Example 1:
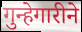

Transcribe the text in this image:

गुन्हेगारीने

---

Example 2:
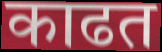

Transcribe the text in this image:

काढत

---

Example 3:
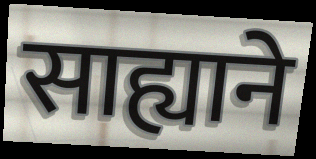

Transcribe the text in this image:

साह्याने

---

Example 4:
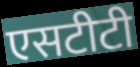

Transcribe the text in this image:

एसटीटी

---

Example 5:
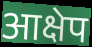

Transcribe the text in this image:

आक्षेप